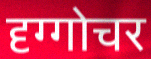
दृग्गोचर